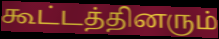
கூட்டத்தினரும்